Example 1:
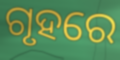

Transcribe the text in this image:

ଗୃହରେ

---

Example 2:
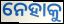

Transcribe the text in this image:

ନେହାକୁ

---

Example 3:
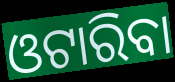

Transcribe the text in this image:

ଓଟାରିବା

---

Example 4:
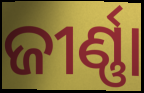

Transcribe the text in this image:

ଜୀର୍ଣ୍ଣା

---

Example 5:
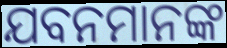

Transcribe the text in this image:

ଯବନମାନଙ୍କ